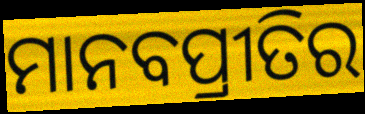
ମାନବପ୍ରୀତିର